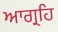
ਆਗ੍ਰਹਿ